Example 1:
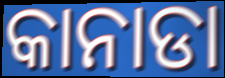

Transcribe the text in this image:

କାନାଡା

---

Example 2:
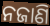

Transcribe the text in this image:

ନଜାଣି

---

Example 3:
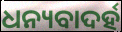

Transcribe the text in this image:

ଧନ୍ୟବାଦର୍ହ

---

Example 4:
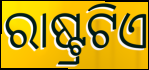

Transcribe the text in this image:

ରାଷ୍ଟ୍ରଟିଏ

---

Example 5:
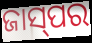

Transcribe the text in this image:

ଜାସ୍‌ପର